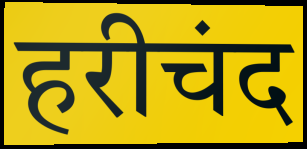
हरीचंद